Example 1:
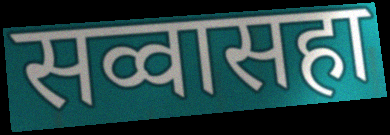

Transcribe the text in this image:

सव्वासहा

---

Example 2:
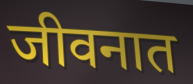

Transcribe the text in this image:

जीवनात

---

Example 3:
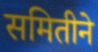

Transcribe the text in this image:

समितीने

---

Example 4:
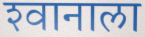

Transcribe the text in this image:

श्वानाला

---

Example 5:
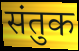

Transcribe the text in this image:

संतुक